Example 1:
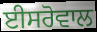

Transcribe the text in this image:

ਈਸਰੋਵਾਲ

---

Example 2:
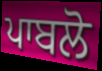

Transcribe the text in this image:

ਪਾਬਲੋ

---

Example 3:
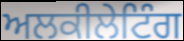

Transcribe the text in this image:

ਅਲਕੀਲੇਟਿੰਗ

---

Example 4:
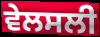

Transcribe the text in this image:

ਵੇਲਸਲੀ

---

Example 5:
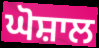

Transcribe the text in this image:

ਘੋਸ਼ਾਲ